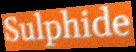
Sulphide